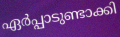
ഏർപ്പാടുണ്ടാക്കി